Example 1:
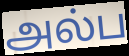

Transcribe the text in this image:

அல்ப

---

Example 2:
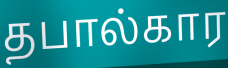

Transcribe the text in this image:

தபால்கார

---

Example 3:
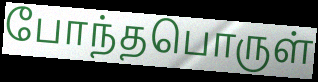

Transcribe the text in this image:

போந்தபொருள்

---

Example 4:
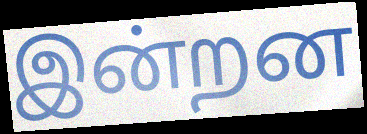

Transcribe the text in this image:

இன்றன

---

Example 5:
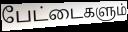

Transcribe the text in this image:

பேட்டைகளும்